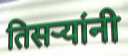
तिसऱ्यांनी